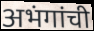
अभंगांची